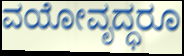
ವಯೋವೃದ್ಧರೂ